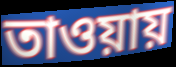
তাওয়ায়